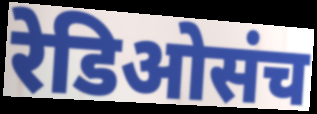
रेडिओसंच